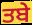
ਤਬੇ